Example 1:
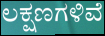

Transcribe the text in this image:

ಲಕ್ಷಣಗಳಿವೆ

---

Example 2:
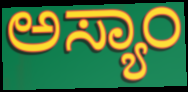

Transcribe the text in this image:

ಅಸ್ಯಾಂ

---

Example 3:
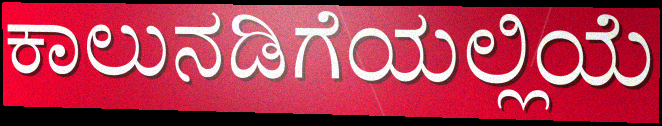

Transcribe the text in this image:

ಕಾಲುನಡಿಗೆಯಲ್ಲಿಯೆ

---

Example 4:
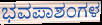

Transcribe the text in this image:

ಭವಪಾಶಂಗಳ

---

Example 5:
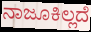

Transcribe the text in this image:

ನಾಜೂಕಿಲ್ಲದೆ